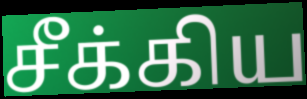
சீக்கிய